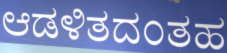
ಆಡಳಿತದಂತಹ